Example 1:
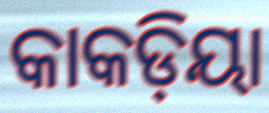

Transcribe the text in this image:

କାକଡ଼ିୟା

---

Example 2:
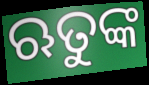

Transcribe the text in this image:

ଋତୁଙ୍କ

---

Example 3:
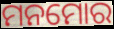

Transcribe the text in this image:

ମନମୋର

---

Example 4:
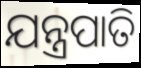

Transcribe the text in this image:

ଯନ୍ତ୍ରପାତି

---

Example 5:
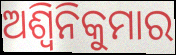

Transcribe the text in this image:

ଅଶ୍ୱିନିକୁମାର